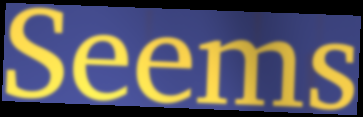
Seems